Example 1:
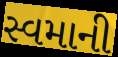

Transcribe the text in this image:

સ્વમાની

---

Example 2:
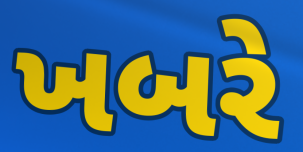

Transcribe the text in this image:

ખબરે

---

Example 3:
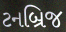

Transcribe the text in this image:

ટનબ્રિજ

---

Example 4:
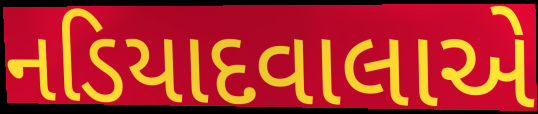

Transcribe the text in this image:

નડિયાદવાલાએ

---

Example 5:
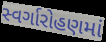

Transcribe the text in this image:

સ્વર્ગારોહણમાં